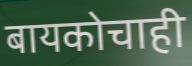
बायकोचाही